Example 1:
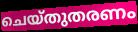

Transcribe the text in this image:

ചെയ്തുതരണം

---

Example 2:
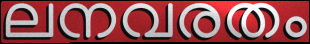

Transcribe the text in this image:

ലനവരതം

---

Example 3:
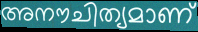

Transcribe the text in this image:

അനൗചിത്യമാണ്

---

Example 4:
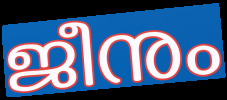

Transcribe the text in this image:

ജീനും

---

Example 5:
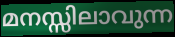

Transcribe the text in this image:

മനസ്സിലാവുന്ന